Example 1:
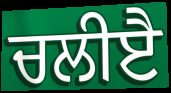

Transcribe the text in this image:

ਚਲੀੲੈ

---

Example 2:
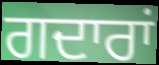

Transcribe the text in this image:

ਗਦਾਰਾਂ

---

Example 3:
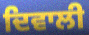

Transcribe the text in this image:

ਦਿਵਾਲੀ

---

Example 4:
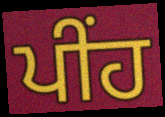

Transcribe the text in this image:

ਪੀਂਹ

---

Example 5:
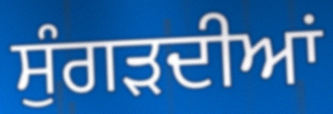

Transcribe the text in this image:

ਸੁੰਗੜਦੀਆਂ